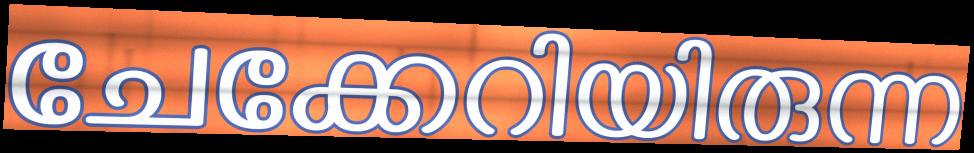
ചേക്കേറിയിരുന്ന